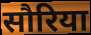
सौरिया